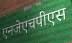
एनजेएचपीएस